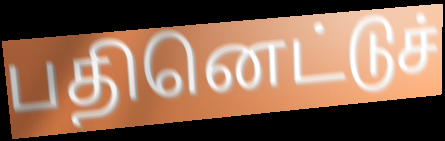
பதினெட்டுச்